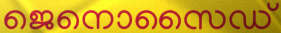
ജെനൊസൈഡ്